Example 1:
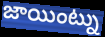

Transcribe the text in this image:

జాయింట్ను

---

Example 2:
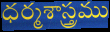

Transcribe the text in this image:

ధర్మశాస్త్రము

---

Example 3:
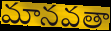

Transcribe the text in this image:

మానవతా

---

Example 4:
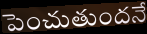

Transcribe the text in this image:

పెంచుతుందనే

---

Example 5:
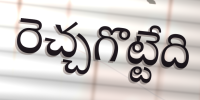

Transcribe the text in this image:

రెచ్చగొట్టేది